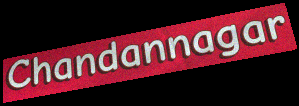
Chandannagar